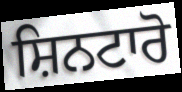
ਸ਼ਿਨਟਾਰੋ